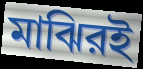
মাঝিরই